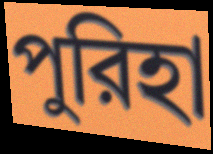
পুরিহা